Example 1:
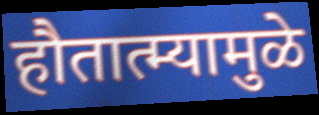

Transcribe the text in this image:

हौतात्म्यामुळे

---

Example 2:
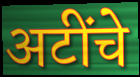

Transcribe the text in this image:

अटींचे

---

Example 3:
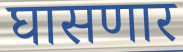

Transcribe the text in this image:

घासणार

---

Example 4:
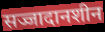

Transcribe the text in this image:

सज्जादानशीन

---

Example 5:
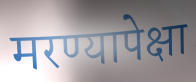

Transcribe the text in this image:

मरण्यापेक्षा